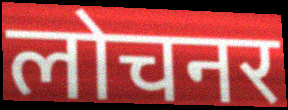
लोचनर